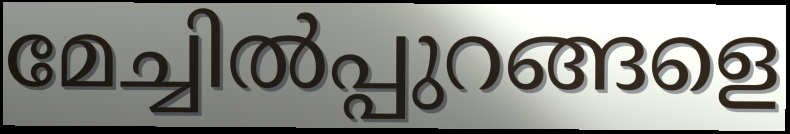
മേച്ചിൽപ്പുറങ്ങളെ